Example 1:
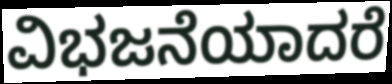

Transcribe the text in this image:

ವಿಭಜನೆಯಾದರೆ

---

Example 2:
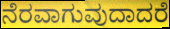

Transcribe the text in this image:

ನೆರವಾಗುವುದಾದರೆ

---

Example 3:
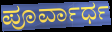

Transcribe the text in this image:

ಪೂರ್ವಾರ್ಧ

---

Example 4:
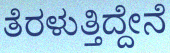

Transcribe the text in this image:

ತೆರಳುತ್ತಿದ್ದೇನೆ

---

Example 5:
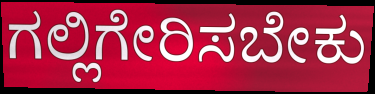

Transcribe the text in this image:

ಗಲ್ಲಿಗೇರಿಸಬೇಕು